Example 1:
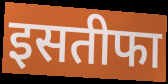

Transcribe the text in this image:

इसतीफा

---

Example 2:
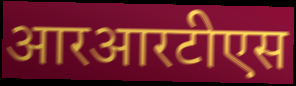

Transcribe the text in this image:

आरआरटीएस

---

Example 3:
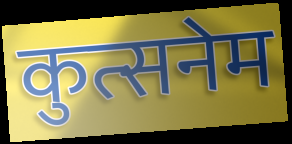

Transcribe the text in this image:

कुत्सनेम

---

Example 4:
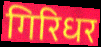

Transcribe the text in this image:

गिरिधर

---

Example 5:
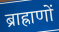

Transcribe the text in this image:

ब्राह्राणों